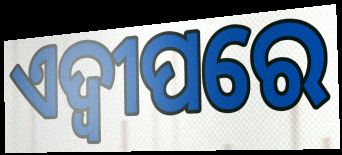
ଏଦ୍ୱୀପରେ